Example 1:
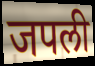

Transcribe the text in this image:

जपली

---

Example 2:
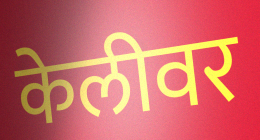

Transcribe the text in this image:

केलीवर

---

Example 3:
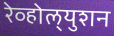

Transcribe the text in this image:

रेव्होल्युशन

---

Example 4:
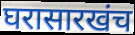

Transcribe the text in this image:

घरासारखंच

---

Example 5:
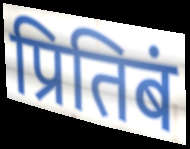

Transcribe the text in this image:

प्रितिबं